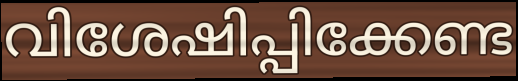
വിശേഷിപ്പിക്കേണ്ട